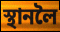
স্থানলৈ